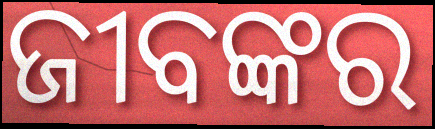
ଜୀବଙ୍କର